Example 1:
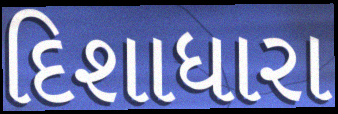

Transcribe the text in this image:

દિશાધારા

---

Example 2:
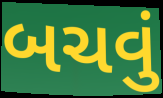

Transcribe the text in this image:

બચવું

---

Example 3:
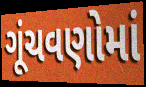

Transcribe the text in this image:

ગૂંચવણોમાં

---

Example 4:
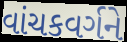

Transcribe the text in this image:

વાંચકવર્ગને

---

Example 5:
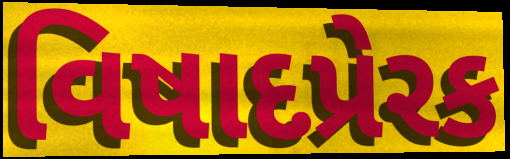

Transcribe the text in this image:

વિષાદપ્રેરક